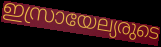
ഇസ്രായേല്യരുടെ